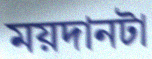
ময়দানটা